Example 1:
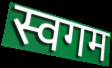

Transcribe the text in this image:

स्वगम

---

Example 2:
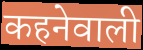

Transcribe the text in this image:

कहनेवाली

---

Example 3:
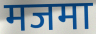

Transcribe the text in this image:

मजमा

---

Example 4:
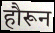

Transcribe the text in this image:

हौरून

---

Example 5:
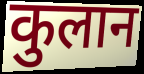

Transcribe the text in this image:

कुलान